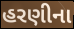
હરણીના